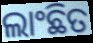
ଲାଂଛିତ